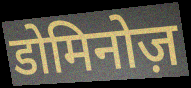
डोमिनोज़